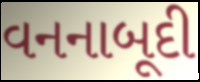
વનનાબૂદી